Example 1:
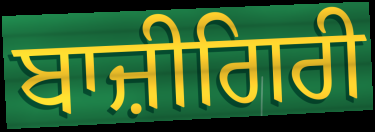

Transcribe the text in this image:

ਬਾਜ਼ੀਗਿਰੀ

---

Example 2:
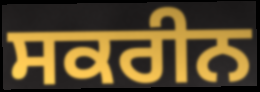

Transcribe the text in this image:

ਸਕਰੀਨ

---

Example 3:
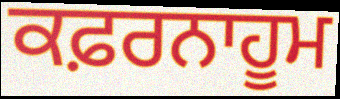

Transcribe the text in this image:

ਕਫ਼ਰਨਾਹੂਮ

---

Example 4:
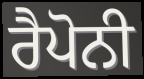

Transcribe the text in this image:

ਰੈਪੋਨੀ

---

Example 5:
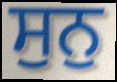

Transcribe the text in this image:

ਸੁਨੁ